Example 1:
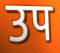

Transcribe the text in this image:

उप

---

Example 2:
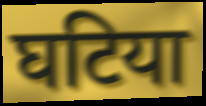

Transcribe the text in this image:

घटिया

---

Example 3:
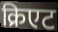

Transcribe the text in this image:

क्रिएट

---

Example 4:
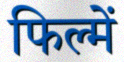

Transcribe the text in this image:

फिल्में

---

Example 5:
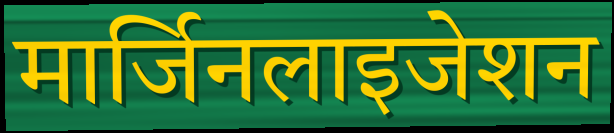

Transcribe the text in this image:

मार्जिनलाइजेशन